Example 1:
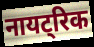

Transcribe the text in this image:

नायट्रिक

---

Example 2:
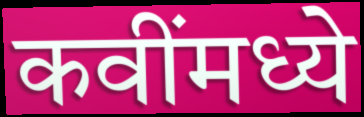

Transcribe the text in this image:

कवींमध्ये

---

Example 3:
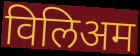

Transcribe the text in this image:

विलिअम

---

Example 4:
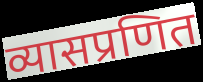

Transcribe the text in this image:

व्यासप्रणित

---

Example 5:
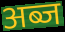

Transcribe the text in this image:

अब्ज